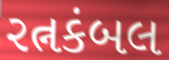
રત્નકંબલ